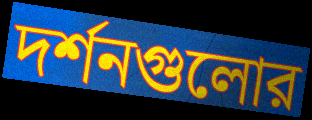
দর্শনগুলোর